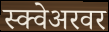
स्क्वेअरवर